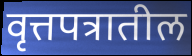
वृत्तपत्रातील